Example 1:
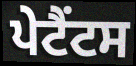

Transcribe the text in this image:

ਪੇਟੈਂਟਸ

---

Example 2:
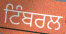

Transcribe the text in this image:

ਟਿੰਬਰਲ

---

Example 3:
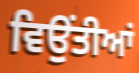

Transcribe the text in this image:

ਵਿਉਂਤੀਆਂ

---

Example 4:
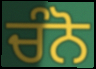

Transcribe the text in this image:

ਚੰਨੋ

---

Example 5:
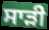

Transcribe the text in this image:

ਸਾੜੀ